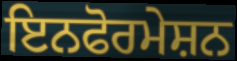
ਇਨਫੋਰਮੇਸ਼ਨ